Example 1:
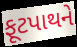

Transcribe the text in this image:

ફૂટપાથને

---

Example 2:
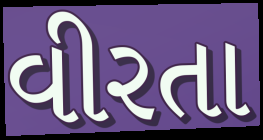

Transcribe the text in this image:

વીરતા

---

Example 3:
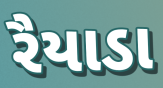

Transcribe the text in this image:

રૈયાડા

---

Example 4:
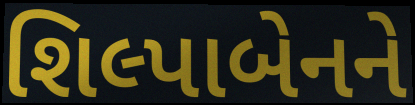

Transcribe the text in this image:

શિલ્પાબેનને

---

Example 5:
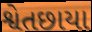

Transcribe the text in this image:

શ્વેતછાયા